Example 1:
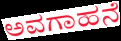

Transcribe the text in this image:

ಅವಗಾಹನೆ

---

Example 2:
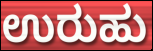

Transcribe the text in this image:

ಉರುಹು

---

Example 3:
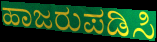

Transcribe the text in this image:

ಹಾಜರುಪಡಿಸಿ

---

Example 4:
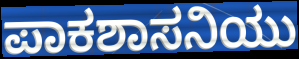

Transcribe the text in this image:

ಪಾಕಶಾಸನಿಯು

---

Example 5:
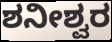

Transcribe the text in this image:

ಶನೀಶ್ವರ